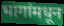
भागांमधून